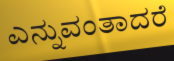
ಎನ್ನುವಂತಾದರೆ